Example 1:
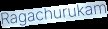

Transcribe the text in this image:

Ragachurukam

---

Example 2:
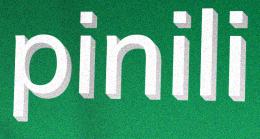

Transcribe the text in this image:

pinili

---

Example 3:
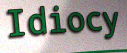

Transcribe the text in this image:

Idiocy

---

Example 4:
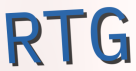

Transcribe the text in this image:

RTG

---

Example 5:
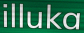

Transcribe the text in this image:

illuka